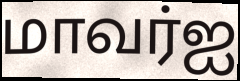
மாவர்ஐ